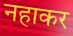
नहाकर